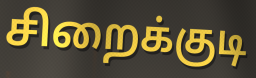
சிறைக்குடி